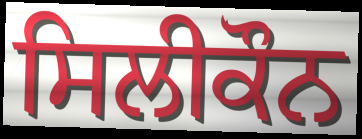
ਸਿਲੀਕੌਨ